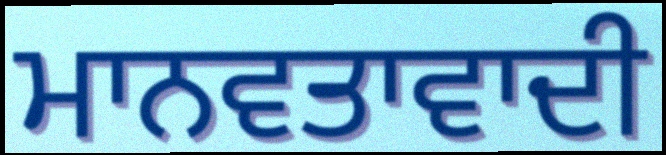
ਮਾਨਵਤਾਵਾਦੀ